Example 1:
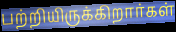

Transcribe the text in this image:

பற்றியிருக்கிறார்கள்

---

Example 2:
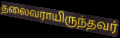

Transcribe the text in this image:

தலைவராயிருந்தவர்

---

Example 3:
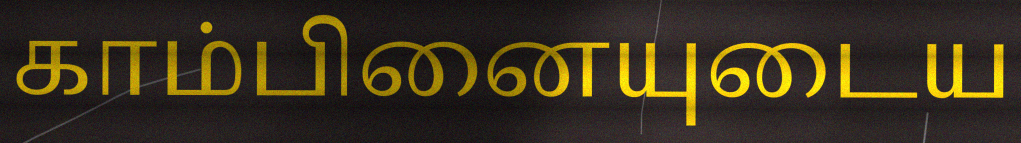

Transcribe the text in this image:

காம்பினையுடைய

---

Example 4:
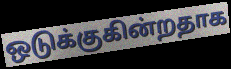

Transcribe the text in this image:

ஒடுக்குகின்றதாக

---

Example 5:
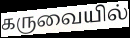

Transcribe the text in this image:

கருவையில்